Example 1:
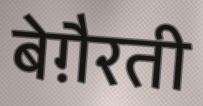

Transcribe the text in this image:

बेग़ैरती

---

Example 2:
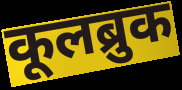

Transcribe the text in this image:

कूलब्रुक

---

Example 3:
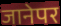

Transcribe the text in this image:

जानेपर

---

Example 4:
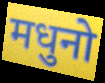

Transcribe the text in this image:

मधुनो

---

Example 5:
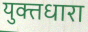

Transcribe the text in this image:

युक्तधारा